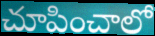
చూపించాలో